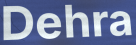
Dehra